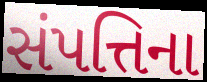
સંપત્તિના